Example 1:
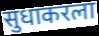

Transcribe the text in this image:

सुधाकरला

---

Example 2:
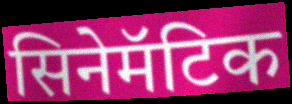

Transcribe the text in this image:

सिनेमॅटिक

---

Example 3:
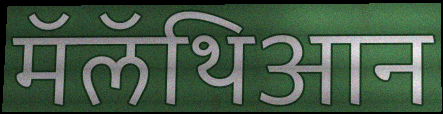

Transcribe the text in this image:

मॅलॅथिआन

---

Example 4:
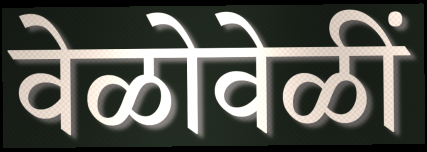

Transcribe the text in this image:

वेळोवेळीं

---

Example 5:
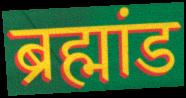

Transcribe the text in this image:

ब्रह्मांड